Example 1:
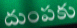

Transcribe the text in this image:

దుంపకు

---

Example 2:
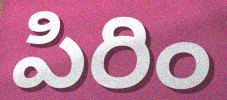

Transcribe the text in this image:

పిరిం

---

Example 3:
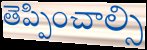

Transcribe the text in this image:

తెప్పించాల్సి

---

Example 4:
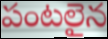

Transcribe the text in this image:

పంటలైన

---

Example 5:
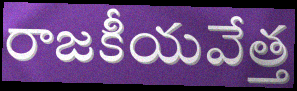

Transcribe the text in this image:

రాజకీయవేత్త